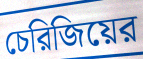
চেরিজিয়ের